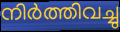
നിർത്തിവച്ചു